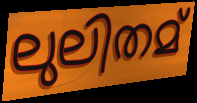
ലുലിതമ്